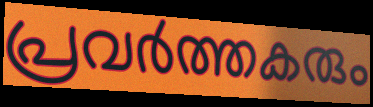
പ്രവർത്തകരും